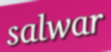
salwar